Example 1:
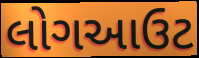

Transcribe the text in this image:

લોગઆઉટ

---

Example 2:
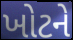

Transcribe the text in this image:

ખોટને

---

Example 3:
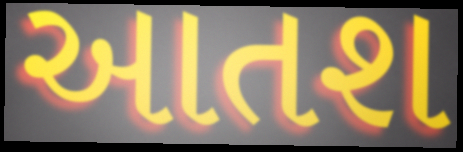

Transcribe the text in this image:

આતશ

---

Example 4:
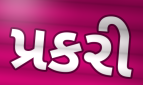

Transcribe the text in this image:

પ્રકરી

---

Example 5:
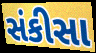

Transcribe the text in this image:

સંકીસા